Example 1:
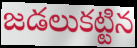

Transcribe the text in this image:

జడలుకట్టిన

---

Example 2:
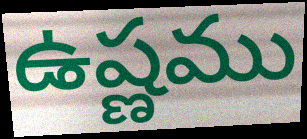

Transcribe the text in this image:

ఉష్ణము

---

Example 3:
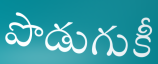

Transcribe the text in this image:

పొడుగుకీ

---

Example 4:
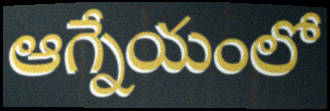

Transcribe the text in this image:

ఆగ్నేయంలో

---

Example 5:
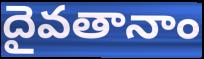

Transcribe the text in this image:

దైవతానాం